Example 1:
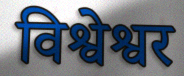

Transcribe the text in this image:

विश्वेश्वर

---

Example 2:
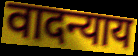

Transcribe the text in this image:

वादन्याय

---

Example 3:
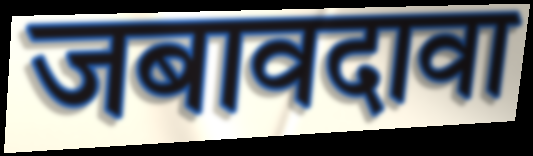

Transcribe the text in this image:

जबावदावा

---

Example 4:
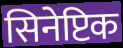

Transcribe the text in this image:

सिनेप्टिक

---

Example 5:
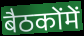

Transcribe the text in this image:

बैठकोंमें